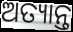
ଅତ୍ୟାନ୍ତ